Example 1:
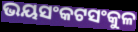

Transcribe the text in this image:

ଭୟସଂକଟସଂକୁଳ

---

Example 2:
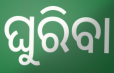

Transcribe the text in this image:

ଘୁରିବା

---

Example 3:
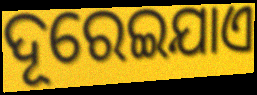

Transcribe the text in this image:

ଦୂରେଇଯାଏ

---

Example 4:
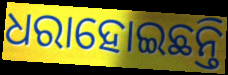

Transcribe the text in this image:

ଧରାହୋଇଛନ୍ତି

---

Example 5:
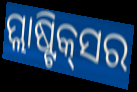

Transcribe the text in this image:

ପ୍ଲାଷ୍ଟିକ୍‌ସର